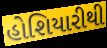
હોશિયારીથી